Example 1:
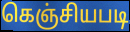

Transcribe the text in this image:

கெஞ்சியபடி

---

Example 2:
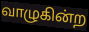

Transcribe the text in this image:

வாழுகின்ற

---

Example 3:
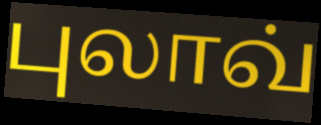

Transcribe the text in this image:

புலாவ்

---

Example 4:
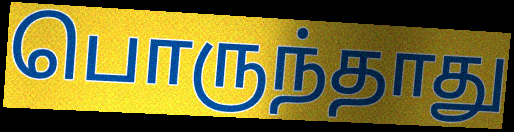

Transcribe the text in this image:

பொருந்தாது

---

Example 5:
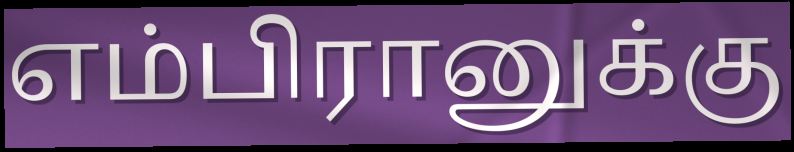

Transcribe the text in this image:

எம்பிரானுக்கு